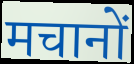
मचानों